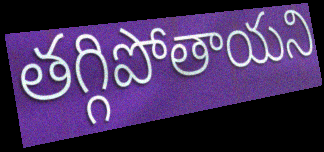
తగ్గిపోతాయని